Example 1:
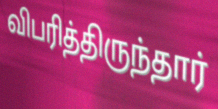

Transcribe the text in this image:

விபரித்திருந்தார்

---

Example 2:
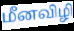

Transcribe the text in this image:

மீனவிழி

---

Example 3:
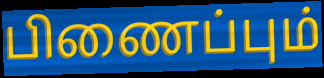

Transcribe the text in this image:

பிணைப்பும்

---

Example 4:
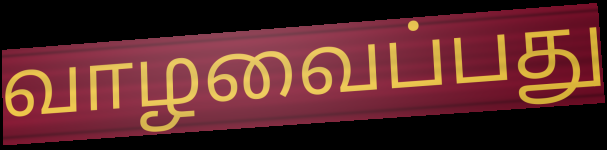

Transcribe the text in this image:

வாழவைப்பது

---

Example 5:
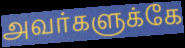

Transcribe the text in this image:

அவர்களுக்கே